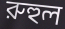
রুহুল